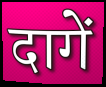
दागें